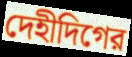
দেহীদিগের